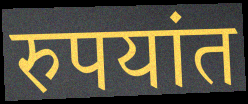
रुपयांत